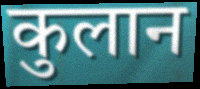
कुलान